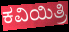
ಕವಿಯಿತ್ರಿ